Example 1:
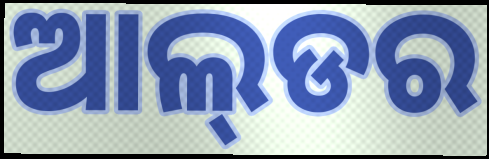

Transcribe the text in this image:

ଆଲ୍‌ଡର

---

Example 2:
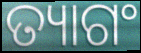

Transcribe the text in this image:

ତ୍ୟାଗଂ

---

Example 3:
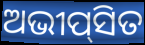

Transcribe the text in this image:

ଅଭୀପ୍‌ସିତ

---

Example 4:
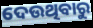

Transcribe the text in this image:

ଦେଉଥିବାରୁ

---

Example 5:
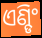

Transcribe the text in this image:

ଏଣ୍ଡିଂ